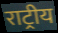
राट्रीय